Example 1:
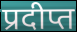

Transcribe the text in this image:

प्रदीप्त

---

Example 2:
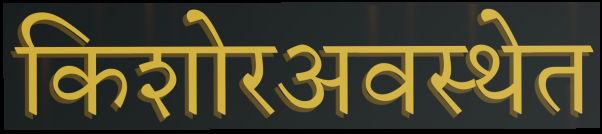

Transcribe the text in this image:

किशोरअवस्थेत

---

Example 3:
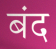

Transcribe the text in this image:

बंद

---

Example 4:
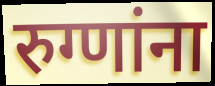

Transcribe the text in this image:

रुग्णांना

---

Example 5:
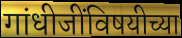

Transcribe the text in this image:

गांधीजींविषयीच्या